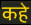
कहे